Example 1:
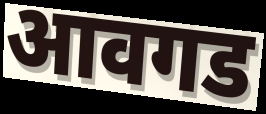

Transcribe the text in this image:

आवगड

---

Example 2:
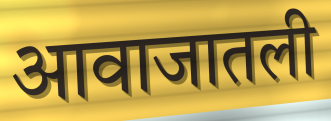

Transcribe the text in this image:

आवाजातली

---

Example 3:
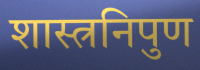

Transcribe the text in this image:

शास्त्रनिपुण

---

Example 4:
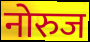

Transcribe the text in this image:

नोरुज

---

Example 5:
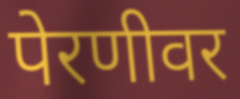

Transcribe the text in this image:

पेरणीवर